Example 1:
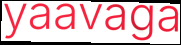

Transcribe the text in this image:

yaavaga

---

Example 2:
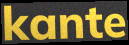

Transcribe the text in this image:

kante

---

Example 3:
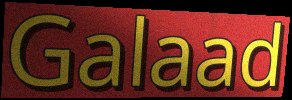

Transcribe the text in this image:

Galaad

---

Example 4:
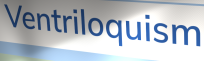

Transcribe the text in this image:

Ventriloquism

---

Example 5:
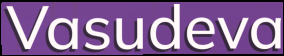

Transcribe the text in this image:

Vasudeva